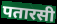
पतारसी